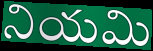
నియమి